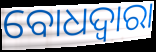
ବୋଧଦ୍ଵାରା